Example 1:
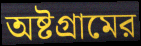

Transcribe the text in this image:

অষ্টগ্রামের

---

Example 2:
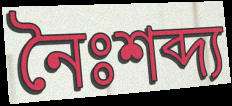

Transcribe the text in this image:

নৈঃশব্দ্য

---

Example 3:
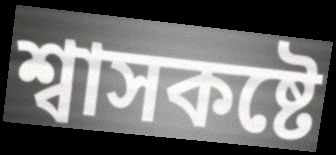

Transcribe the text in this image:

শ্বাসকষ্টে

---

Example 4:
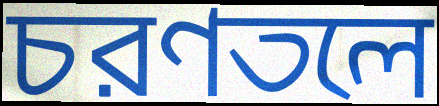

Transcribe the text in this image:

চরণতলে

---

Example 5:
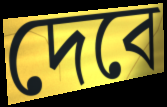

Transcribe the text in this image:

দেবে